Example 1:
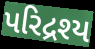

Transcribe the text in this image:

પરિદ્રશ્ય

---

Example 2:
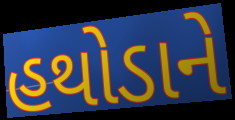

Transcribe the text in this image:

હથોડાને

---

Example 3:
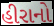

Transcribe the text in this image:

હીરાનો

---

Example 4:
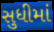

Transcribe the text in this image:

સુધીમાં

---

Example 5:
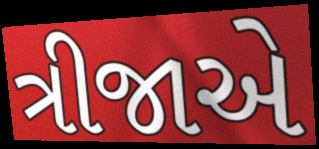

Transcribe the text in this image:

ત્રીજાએ